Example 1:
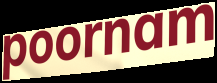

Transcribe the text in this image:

poornam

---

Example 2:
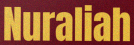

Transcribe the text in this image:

Nuraliah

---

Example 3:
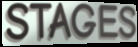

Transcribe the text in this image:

STAGES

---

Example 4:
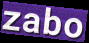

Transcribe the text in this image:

zabo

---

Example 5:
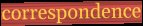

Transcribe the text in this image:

correspondence